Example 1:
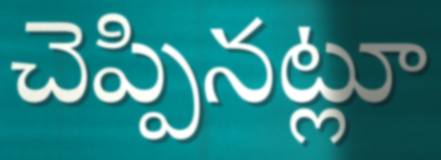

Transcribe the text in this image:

చెప్పినట్లూ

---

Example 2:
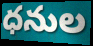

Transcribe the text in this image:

ధనుల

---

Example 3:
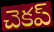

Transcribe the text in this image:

చెకప్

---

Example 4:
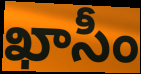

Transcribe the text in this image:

ఖాసీం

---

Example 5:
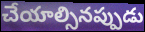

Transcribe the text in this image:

చేయాల్సినప్పుడు